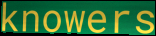
knowers